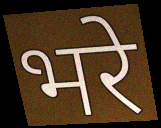
भरे